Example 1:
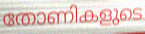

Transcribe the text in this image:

തോണികളുടെ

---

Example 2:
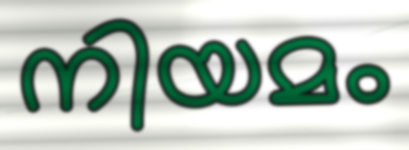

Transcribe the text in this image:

നിയമം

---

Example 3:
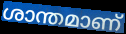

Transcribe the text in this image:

ശാന്തമാണ്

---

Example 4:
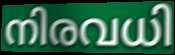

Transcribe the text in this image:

നിരവധി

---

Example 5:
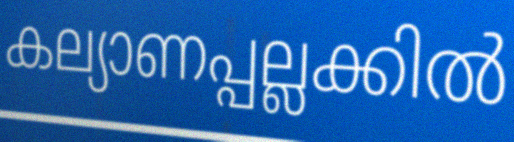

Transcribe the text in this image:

കല്യാണപ്പല്ലക്കിൽ